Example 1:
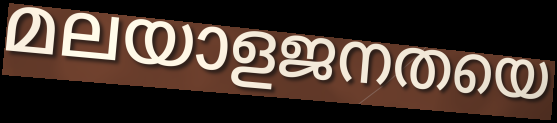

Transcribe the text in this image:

മലയാളജനതയെ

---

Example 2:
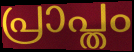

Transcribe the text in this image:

പ്രാപ്തം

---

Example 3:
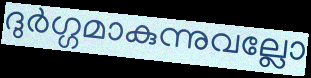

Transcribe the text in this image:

ദുർഗ്ഗമാകുന്നുവല്ലോ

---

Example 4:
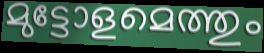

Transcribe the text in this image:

മുട്ടോളമെത്തും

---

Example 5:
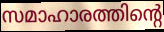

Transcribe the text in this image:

സമാഹാരത്തിന്റെ